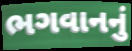
ભગવાનનું